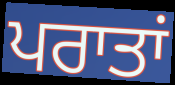
ਪਰਾਤਾਂ